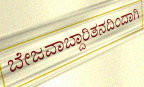
ಬೇಜವಾಬ್ದಾರಿತನದಿಂದಾಗಿ